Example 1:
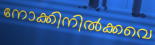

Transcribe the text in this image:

നോക്കിനിൽക്കവെ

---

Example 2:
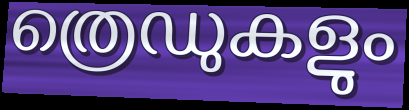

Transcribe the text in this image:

ത്രെഡുകളും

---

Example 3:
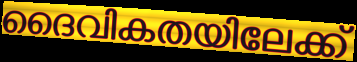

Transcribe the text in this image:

ദൈവികതയിലേക്ക്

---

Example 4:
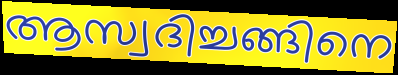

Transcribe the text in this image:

ആസ്വദിച്ചങ്ങിനെ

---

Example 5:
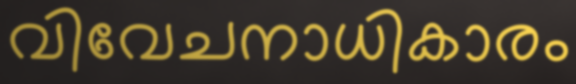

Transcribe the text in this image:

വിവേചനാധികാരം